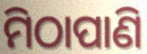
ମିଠାପାଣି